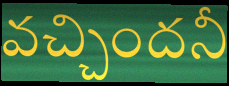
వచ్చిందనీ